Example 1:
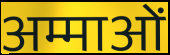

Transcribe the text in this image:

अम्माओं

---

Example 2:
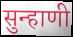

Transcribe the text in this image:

सुन्हाणी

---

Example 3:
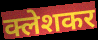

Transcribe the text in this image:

क्लेशकर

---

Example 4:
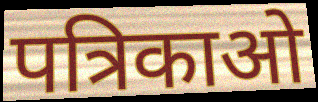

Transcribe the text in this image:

पत्रिकाओ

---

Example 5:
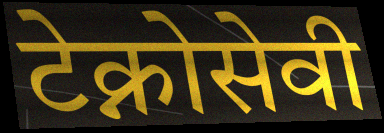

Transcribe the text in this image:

टेक्नोसेवी